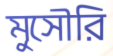
মুসৌরি